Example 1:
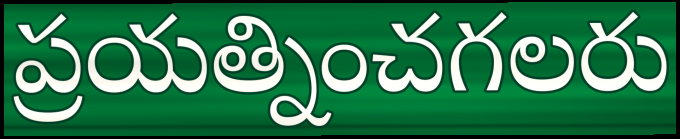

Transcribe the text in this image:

ప్రయత్నించగలరు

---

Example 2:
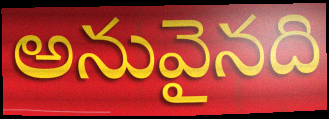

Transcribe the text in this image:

అనువైనది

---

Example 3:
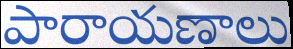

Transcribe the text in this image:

పారాయణాలు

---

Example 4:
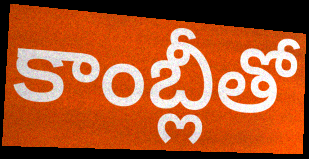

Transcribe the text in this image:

కాంబ్లీతో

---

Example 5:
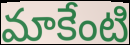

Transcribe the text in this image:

మాకేంటి